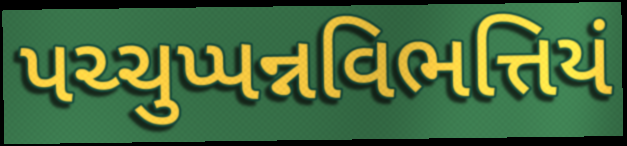
પચ્ચુપ્પન્નવિભત્તિયં